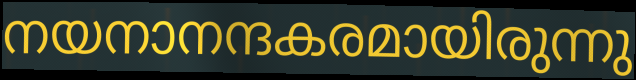
നയനാനന്ദകരമായിരുന്നു